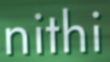
nithi